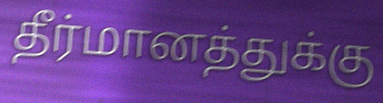
தீர்மானத்துக்கு